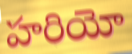
హరియో